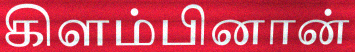
கிளம்பினான்